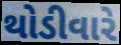
થોડીવારે